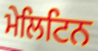
ਮੇਲਿਟਿਨ